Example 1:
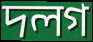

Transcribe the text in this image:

দলগ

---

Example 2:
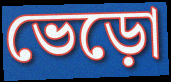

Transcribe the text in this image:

ভেড়ো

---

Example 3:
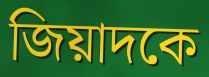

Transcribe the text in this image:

জিয়াদকে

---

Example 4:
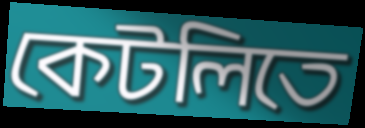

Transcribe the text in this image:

কেটলিতে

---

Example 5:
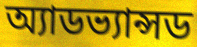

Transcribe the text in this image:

অ্যাডভ্যান্সড